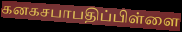
கனகசபாபதிப்பிள்ளை